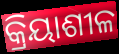
କ୍ରିୟାଶୀଳ